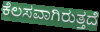
ಕೆಲಸವಾಗಿರುತ್ತದೆ